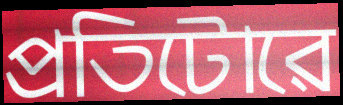
প্ৰতিটোৱে